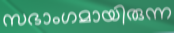
സഭാംഗമായിരുന്ന